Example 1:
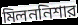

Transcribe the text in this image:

মিলননিশার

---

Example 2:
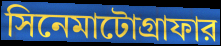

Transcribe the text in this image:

সিনেমাটোগ্রাফার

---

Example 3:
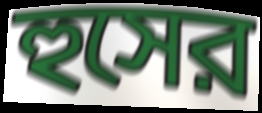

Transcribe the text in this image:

হুসের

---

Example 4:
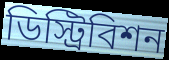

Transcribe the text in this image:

ডিস্ট্রিবিশন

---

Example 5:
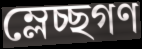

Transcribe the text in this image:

ম্লেচ্ছগণ